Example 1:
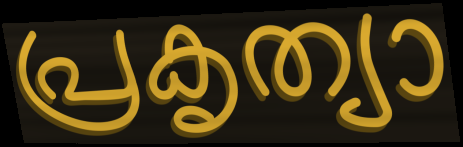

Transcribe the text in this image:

പ്രകൃത്യാ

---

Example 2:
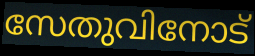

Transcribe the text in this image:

സേതുവിനോട്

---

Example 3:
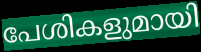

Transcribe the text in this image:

പേശികളുമായി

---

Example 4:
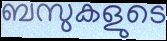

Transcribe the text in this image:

ബസുകളുടെ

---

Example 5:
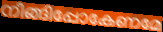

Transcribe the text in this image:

നീങ്ങിപ്പോകേണമേ